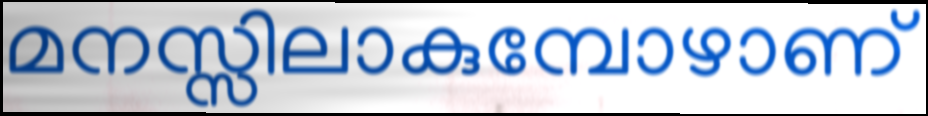
മനസ്സിലാകുമ്പോഴാണ്